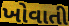
ખોવાતી